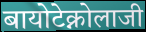
बायोटेक्नोलाजी